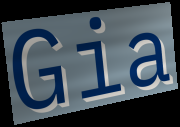
Gia